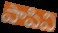
పాపివి